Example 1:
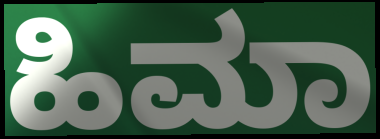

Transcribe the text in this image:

ಹಿಮಾ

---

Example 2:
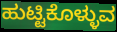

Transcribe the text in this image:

ಹುಟ್ಟಿಕೊಳ್ಳುವ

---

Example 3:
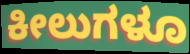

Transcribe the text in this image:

ಕೀಲುಗಳೂ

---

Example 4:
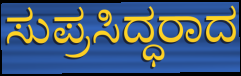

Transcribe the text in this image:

ಸುಪ್ರಸಿದ್ಧರಾದ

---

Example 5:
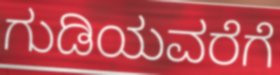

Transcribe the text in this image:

ಗುಡಿಯವರೆಗೆ